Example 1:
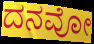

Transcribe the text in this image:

ದನವೋ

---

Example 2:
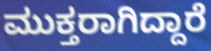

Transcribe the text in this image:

ಮುಕ್ತರಾಗಿದ್ದಾರೆ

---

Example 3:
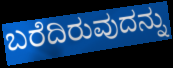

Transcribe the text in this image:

ಬರೆದಿರುವುದನ್ನು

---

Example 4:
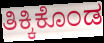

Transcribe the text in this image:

ತಿಕ್ಕಿಕೊಂಡ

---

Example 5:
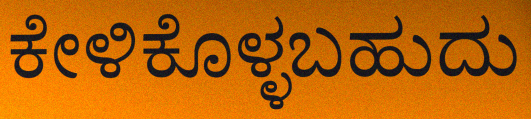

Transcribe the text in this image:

ಕೇಳಿಕೊಳ್ಳಬಹುದು